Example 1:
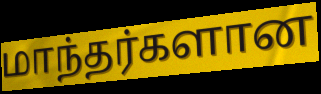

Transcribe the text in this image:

மாந்தர்களான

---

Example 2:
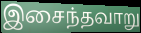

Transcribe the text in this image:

இசைந்தவாறு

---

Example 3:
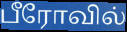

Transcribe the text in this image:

பீரோவில்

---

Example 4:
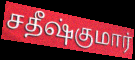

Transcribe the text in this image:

சதீஷ்குமார்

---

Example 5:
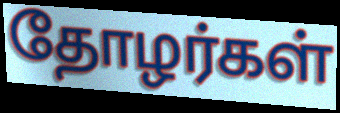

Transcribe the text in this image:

தோழர்கள்